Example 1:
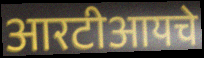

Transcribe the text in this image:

आरटीआयचे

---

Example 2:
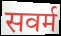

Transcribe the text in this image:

सवर्म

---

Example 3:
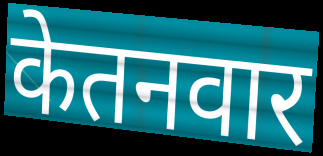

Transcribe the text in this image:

केतनवार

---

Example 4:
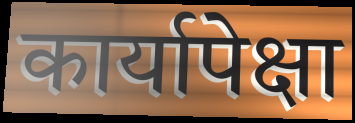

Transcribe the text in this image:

कार्यापेक्षा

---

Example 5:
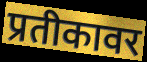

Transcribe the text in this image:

प्रतीकावर